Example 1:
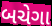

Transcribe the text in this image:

બચેગા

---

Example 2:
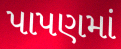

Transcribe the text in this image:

પાપણમાં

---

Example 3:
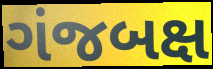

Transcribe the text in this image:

ગંજબક્ષ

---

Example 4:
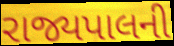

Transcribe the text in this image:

રાજ્યપાલની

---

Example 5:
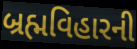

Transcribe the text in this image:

બ્રહ્મવિહારની